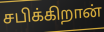
சபிக்கிறான்